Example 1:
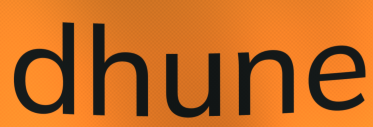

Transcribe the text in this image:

dhune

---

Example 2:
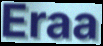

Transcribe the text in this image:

Eraa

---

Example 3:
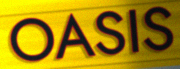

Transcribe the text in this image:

OASIS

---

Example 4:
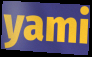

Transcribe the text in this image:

yami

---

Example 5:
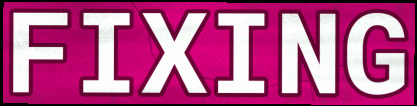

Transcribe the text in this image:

FIXING